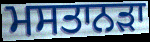
ਮਸਤਾਨੜਾ